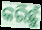
କରିଛୁଁ